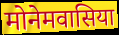
मोनेमवासिया